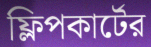
ফ্লিপকার্টের